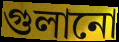
গুলানো